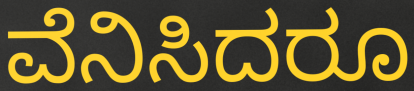
ವೆನಿಸಿದರೂ